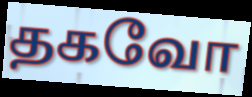
தகவோ